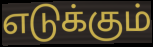
எடுக்கும்